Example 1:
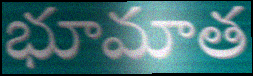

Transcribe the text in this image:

భూమాత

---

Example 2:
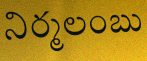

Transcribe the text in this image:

నిర్మలంబు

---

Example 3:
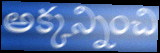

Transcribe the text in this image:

అక్కన్నించి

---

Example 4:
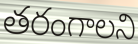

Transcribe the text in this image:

తరంగాలని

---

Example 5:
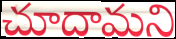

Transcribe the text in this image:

చూదామని